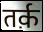
तर्क़